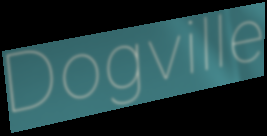
Dogville